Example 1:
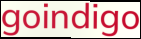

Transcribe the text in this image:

goindigo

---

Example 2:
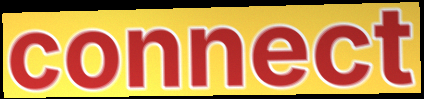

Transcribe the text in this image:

connect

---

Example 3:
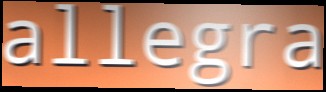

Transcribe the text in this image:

allegra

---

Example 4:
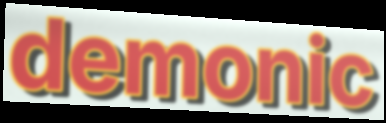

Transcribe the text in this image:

demonic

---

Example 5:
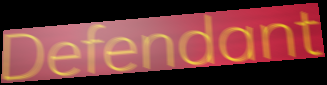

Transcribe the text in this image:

Defendant